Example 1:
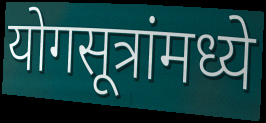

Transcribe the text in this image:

योगसूत्रांमध्ये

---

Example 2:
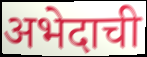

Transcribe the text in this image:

अभेदाची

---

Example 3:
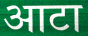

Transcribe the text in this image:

आटा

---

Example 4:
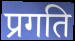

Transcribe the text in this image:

प्रगति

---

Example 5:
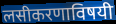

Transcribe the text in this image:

लसीकरणाविषयी